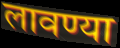
लावण्या